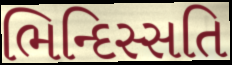
ભિન્દિસ્સતિ